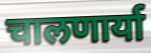
चालणार्या